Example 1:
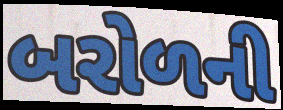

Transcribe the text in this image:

બરોળની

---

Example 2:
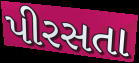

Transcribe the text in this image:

પીરસતા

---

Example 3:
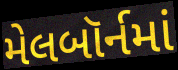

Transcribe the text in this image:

મેલબૉર્નમાં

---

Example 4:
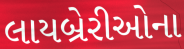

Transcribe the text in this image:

લાયબ્રેરીઓના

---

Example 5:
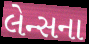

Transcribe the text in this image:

લેન્સના